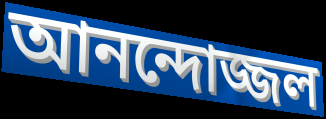
আনন্দোজ্জল